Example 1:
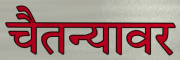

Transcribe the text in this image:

चैतन्यावर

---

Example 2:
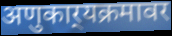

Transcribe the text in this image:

अणुकार्यक्रमावर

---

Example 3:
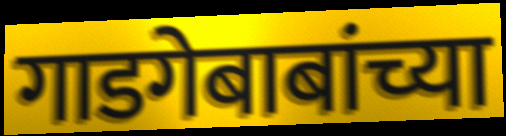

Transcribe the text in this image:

गाडगेबाबांच्या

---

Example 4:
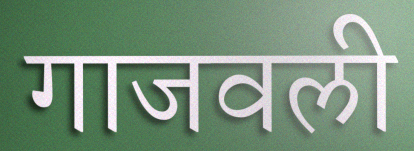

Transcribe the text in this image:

गाजवली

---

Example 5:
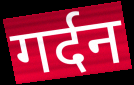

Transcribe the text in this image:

गर्दन